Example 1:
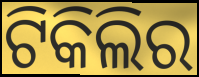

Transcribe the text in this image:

ଟିକିଲିର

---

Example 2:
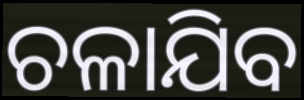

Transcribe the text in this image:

ଚଳାଯିବ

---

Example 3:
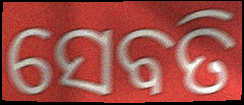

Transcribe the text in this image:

ସେବତି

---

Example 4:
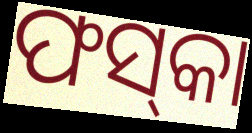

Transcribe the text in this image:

ଫସ୍‌କା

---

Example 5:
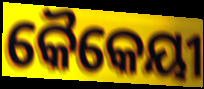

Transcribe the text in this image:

କୈକେୟୀ